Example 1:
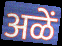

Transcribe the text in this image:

अळें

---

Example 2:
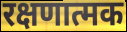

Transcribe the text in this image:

रक्षणात्मक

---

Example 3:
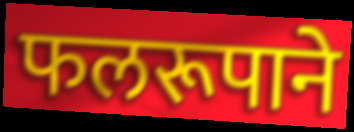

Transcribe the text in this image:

फलरूपाने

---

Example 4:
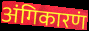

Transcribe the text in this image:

अंगिकारणं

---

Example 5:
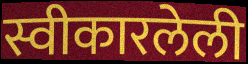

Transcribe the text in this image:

स्वीकारलेली